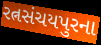
રત્નસંચયપુરના